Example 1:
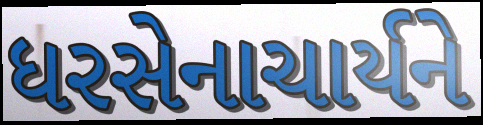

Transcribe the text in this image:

ધરસેનાચાર્યને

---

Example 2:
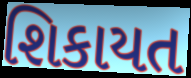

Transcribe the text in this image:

શિકાયત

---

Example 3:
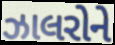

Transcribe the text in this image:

ઝાલરોને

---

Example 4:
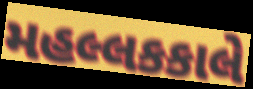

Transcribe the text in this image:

મહલ્લકકાલે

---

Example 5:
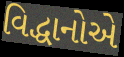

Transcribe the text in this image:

વિદ્ધાનોએ